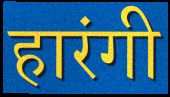
हारंगी